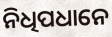
ନିଧିପଧାନେ